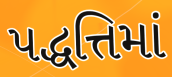
પદ્ધત્તિમાં